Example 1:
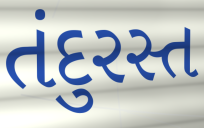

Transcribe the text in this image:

તંદુરસ્ત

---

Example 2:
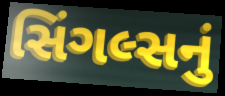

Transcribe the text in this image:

સિંગલ્સનું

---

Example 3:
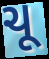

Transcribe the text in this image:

ચૂ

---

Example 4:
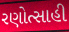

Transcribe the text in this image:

રણોત્સાહી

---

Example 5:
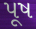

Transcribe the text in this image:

પૂષ